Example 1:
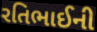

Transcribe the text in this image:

રતિભાઈની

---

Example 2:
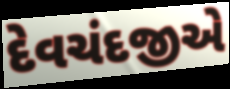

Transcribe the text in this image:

દેવચંદજીએ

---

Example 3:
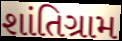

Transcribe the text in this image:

શાંતિગ્રામ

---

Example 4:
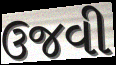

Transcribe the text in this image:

ઉજવી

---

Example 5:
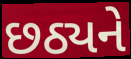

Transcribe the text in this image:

છઠ્યને